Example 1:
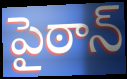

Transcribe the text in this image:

పైఠాన్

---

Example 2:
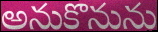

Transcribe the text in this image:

అనుకొనును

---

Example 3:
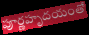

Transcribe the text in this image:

పూర్ణహృదయంతో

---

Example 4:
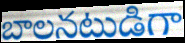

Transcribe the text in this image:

బాలనటుడిగా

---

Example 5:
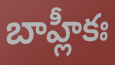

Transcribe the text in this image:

బాహ్లీకః